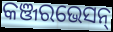
କଞ୍ଜରଭେସନ୍